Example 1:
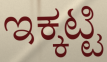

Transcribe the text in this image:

ಇಕ್ಕಟ್ಟಿ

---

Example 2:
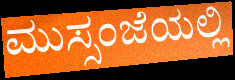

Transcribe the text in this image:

ಮುಸ್ಸಂಜೆಯಲ್ಲಿ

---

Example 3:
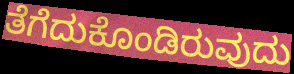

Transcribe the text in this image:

ತೆಗೆದುಕೊಂಡಿರುವುದು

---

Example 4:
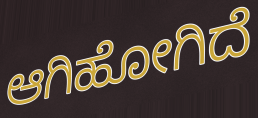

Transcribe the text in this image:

ಆಗಿಹೋಗಿದೆ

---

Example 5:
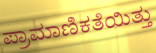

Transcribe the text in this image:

ಪ್ರಾಮಾಣಿಕತೆಯಿತ್ತು